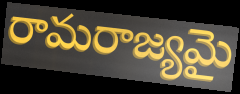
రామరాజ్యమై